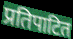
प्रतिपाटित